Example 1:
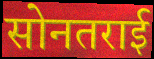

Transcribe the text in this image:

सोनतराई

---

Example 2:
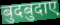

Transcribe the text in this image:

बुदबुदाए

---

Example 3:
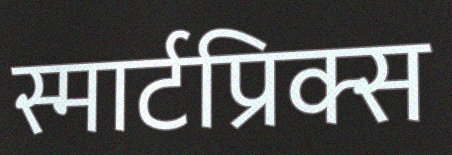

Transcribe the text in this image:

स्मार्टप्रिक्स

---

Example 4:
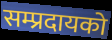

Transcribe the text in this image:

सम्प्रदायको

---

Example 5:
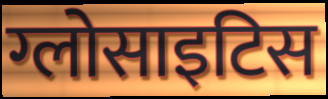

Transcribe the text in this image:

ग्लोसाइटिस